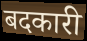
बदकारी